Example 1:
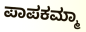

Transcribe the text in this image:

ಪಾಪಕಮ್ಮಾ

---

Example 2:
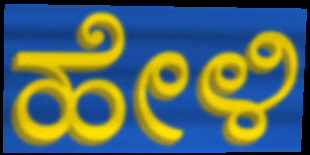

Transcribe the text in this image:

ಹೇಳಿ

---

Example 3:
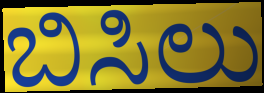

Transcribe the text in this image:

ಬಿಸಿಲು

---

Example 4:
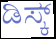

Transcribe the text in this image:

ಡಿಸ್ಕ್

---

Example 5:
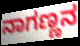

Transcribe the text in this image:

ನಾಗಣ್ಣನ